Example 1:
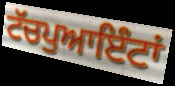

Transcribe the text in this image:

ਟੱਚਪੁਆਇੰਟਾਂ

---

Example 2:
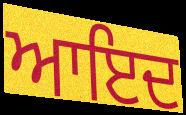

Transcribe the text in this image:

ਆਇਦ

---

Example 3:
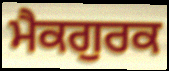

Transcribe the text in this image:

ਮੈਕਗੁਰਕ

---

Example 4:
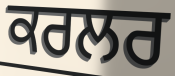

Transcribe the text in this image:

ਕਰਲਰ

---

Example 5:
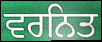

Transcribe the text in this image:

ਵਰਨਿਤ